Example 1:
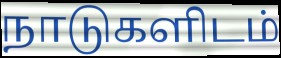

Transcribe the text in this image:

நாடுகளிடம்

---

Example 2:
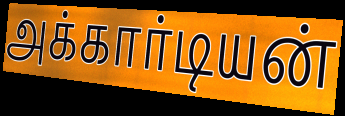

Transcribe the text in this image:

அக்கார்டியன்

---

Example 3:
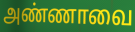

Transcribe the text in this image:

அண்ணாவை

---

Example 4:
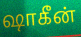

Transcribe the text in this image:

ஷாகீன்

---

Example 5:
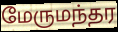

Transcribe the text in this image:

மேருமந்தர